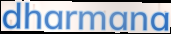
dharmana